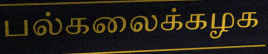
பல்கலைக்கழக